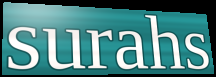
surahs